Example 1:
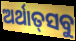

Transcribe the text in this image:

ଅର୍ଥାତ୍‌ସବୁ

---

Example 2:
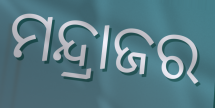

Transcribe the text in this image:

ମନ୍ଦ୍ରାଜର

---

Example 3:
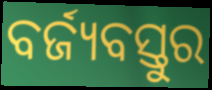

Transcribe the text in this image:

ବର୍ଜ୍ୟବସ୍ତୁର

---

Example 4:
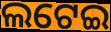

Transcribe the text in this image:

ଲଟେଇ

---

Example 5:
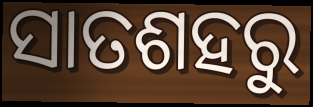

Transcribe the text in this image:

ସାତଶହରୁ